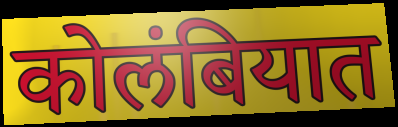
कोलंबियात